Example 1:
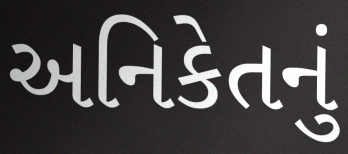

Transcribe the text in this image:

અનિકેતનું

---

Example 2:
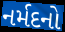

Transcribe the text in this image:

નર્મદનો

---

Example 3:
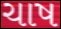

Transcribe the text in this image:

ચાષ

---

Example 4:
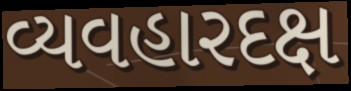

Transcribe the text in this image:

વ્યવહારદક્ષ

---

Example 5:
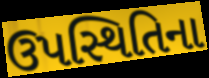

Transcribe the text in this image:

ઉપસ્થિતિના